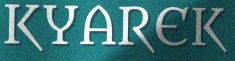
KYAREK